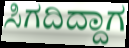
ಸಿಗದಿದ್ದಾಗ